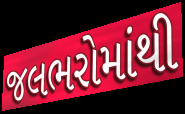
જલભરોમાંથી